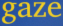
gaze